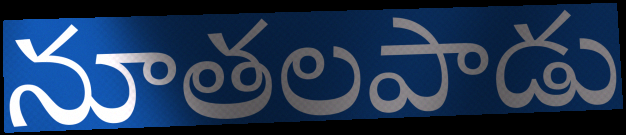
నూతలపాడు